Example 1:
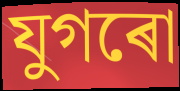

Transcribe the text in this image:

যুগৰো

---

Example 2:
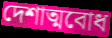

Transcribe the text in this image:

দেশাত্মবোধ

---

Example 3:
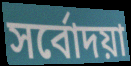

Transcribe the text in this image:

সৰ্বোদয়া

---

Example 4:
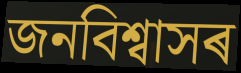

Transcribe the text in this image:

জনবিশ্বাসৰ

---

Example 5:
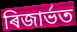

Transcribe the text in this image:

ৰিজাৰ্ভত